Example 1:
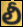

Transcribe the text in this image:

లీ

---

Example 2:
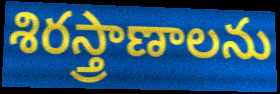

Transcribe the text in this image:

శిరస్త్రాణాలను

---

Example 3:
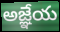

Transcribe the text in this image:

అజ్ఞేయ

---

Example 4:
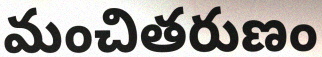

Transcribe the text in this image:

మంచితరుణం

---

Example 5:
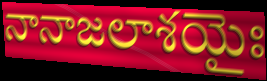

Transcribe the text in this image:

నానాజలాశయైః